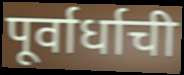
पूर्वार्धाची